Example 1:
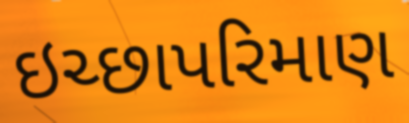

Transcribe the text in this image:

ઇચ્છાપરિમાણ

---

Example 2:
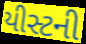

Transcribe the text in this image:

યીસ્ટની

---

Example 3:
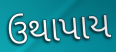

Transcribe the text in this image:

ઉથાપાય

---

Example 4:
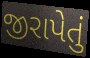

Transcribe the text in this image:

જીરાપેતું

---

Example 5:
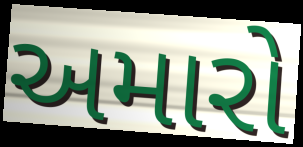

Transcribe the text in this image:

અમારો